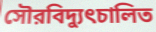
সৌরবিদ্যুৎচালিত